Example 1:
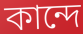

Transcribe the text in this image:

কান্দে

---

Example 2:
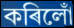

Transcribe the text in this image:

কৰিলোঁ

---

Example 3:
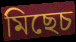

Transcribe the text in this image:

মিছেচ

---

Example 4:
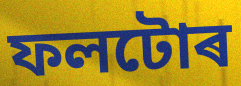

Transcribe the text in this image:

ফলটোৰ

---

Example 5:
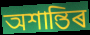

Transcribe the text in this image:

অশান্তিৰ